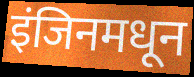
इंजिनमधून